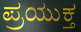
ಪ್ರಯುಕ್ತ